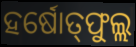
ହର୍ଷୋତ୍‌ଫୁଲ୍ଲ